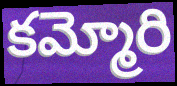
కమ్మోరి